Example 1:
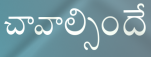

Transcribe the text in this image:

చావాల్సిందే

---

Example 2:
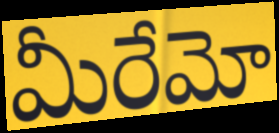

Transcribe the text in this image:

మీరేమో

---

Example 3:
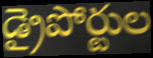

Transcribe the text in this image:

డ్రైపోర్టుల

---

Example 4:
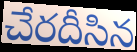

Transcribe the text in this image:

చేరదీసిన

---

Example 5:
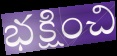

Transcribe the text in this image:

భక్షించి